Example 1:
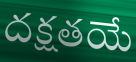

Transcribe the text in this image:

దక్షతయే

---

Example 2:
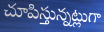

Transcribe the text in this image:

చూపిస్తున్నట్లుగా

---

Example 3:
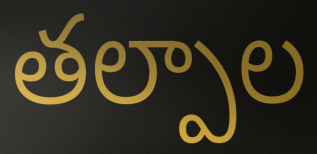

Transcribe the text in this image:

తల్పాల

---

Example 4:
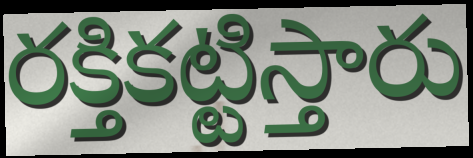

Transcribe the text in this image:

రక్తికట్టిస్తారు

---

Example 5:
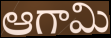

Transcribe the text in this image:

ఆగామి